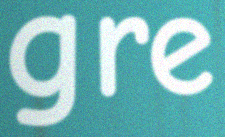
gre